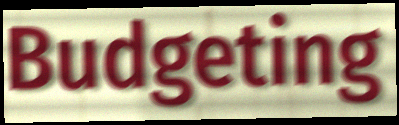
Budgeting